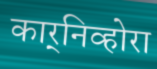
कार्निव्होरा